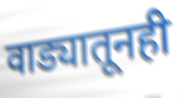
वाड्यातूनही